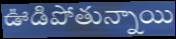
ఊడిపోతున్నాయి